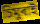
চিমুৰাই